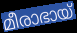
മീരാഭായ്